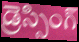
డ్రెస్సింగ్